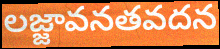
లజ్జావనతవదన